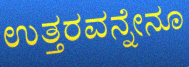
ಉತ್ತರವನ್ನೇನೂ